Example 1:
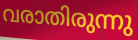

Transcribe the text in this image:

വരാതിരുന്നു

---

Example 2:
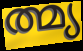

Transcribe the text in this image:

ത്മ്യ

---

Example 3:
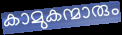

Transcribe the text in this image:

കാമുകന്മാരും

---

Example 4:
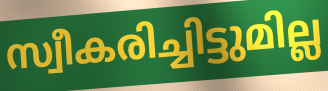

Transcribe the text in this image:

സ്വീകരിച്ചിട്ടുമില്ല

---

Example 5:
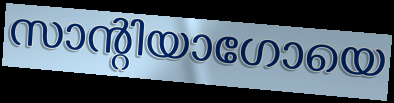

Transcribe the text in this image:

സാന്റിയാഗോയെ